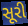
સૂરી